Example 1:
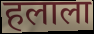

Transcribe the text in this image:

हलाला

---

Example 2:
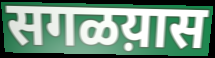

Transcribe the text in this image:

सगळय़ास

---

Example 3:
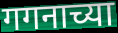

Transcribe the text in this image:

गगनाच्या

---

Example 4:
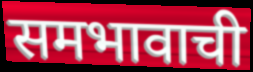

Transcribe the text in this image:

समभावाची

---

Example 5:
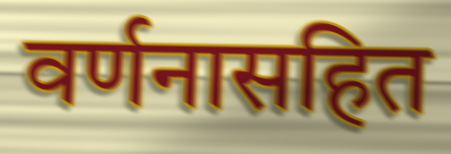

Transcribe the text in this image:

वर्णनासहित